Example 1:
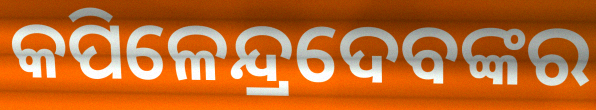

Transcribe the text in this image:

କପିଳେନ୍ଦ୍ରଦେବଙ୍କର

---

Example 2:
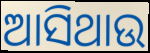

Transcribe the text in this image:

ଆସିଥାଉ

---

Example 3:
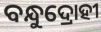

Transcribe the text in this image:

ବନ୍ଧୁଦ୍ରୋହୀ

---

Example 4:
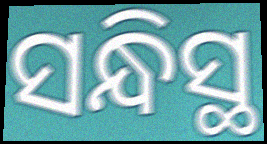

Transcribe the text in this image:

ସନ୍ଧିସ୍ଥ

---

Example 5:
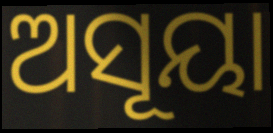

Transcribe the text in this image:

ଅସୂୟା